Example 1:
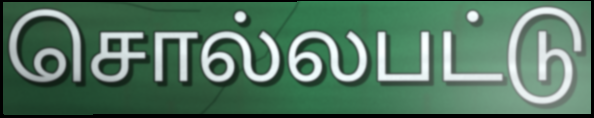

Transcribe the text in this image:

சொல்லபட்டு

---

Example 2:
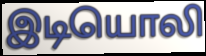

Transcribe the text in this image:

இடியொலி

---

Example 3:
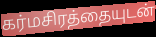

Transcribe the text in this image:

கர்மசிரத்தையுடன்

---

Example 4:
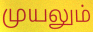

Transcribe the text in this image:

முயலும்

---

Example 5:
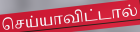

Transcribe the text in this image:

செய்யாவிட்டால்